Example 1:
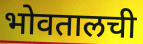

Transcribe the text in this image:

भोवतालची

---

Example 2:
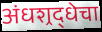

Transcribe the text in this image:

अंधश्रद्धेचा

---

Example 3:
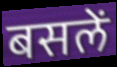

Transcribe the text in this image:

बसलें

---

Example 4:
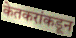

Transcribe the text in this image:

केतकरांकडून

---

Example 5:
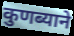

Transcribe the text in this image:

कुणब्याने